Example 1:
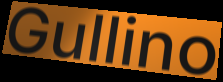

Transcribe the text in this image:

Gullino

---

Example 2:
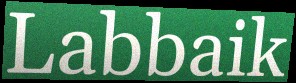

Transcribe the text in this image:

Labbaik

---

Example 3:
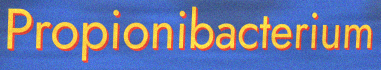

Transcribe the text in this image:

Propionibacterium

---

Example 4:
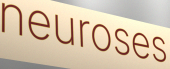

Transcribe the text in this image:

neuroses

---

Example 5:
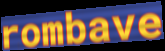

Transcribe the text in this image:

rombave